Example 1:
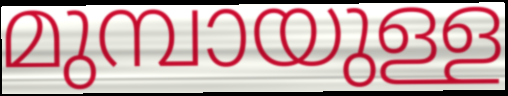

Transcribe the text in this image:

മുമ്പായുള്ള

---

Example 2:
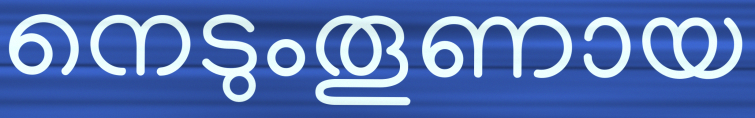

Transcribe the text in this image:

നെടുംതൂണായ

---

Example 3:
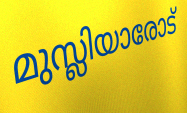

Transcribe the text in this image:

മുസ്ലിയാരോട്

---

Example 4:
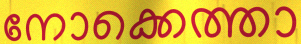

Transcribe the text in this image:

നോക്കെത്താ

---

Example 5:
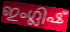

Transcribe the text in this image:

ഇംഗ്ലിഷ്